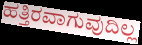
ಹತ್ತಿರವಾಗುವುದಿಲ್ಲ